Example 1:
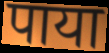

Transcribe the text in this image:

पाया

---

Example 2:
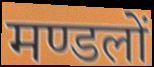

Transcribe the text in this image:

मण्‍डलों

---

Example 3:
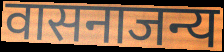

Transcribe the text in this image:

वासनाजन्य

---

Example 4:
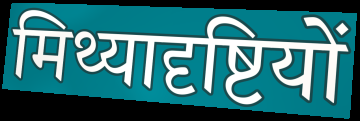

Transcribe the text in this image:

मिथ्यादृष्टियों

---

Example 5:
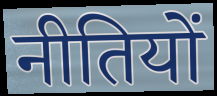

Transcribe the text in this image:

नीतियों